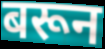
बरून